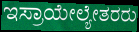
ಇಸ್ರಾಯೇಲ್ಯೇತರರು